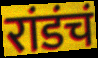
रांडंचं